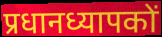
प्रधानध्यापकों